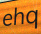
ehq